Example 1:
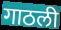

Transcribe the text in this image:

गाठली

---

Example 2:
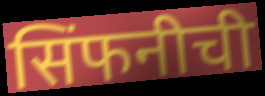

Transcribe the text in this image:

सिंफनीची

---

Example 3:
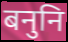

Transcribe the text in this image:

बनुनि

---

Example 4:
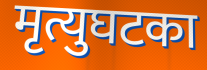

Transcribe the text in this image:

मृत्युघटका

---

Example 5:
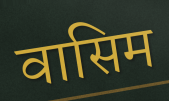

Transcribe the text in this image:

वासिम